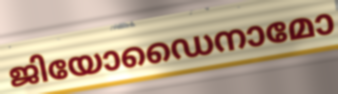
ജിയോഡൈനാമോ